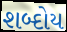
શબ્દોય